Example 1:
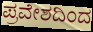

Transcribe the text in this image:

ಪ್ರವೇಶದಿಂದ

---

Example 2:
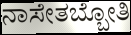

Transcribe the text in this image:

ನಾಸೇತಬ್ಬೋತಿ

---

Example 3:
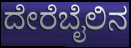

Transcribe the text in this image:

ದೇರೆಬೈಲಿನ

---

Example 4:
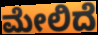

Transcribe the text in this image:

ಮೇಲಿದೆ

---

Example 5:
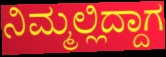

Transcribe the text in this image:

ನಿಮ್ಮಲ್ಲಿದ್ದಾಗ